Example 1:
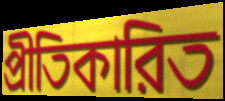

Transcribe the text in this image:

প্রীতিকারিত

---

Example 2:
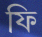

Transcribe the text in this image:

ফি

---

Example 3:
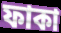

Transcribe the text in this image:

ফাকা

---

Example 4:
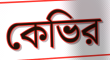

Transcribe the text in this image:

কেভির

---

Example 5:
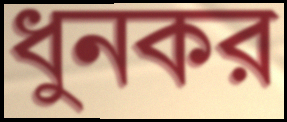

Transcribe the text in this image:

ধুনকর